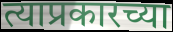
त्याप्रकारच्या